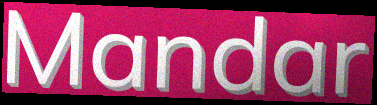
Mandar